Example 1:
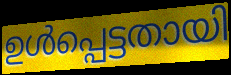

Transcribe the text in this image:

ഉൾപ്പെട്ടതായി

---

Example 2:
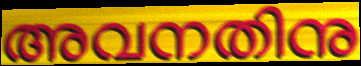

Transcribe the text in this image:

അവനതിനു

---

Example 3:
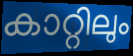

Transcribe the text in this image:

കാറ്റിലും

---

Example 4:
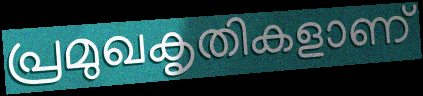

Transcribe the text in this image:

പ്രമുഖകൃതികളാണ്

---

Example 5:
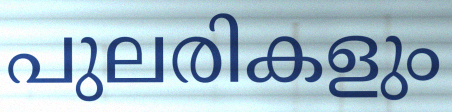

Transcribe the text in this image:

പുലരികളും